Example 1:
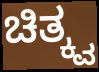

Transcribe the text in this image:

ಚಿತ್ಕ್ವ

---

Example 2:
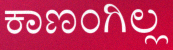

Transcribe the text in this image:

ಕಾಣಂಗಿಲ್ಲ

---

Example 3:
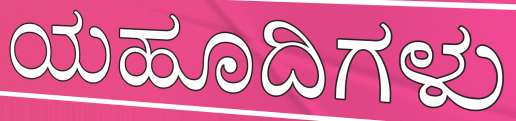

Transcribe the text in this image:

ಯಹೂದಿಗಳು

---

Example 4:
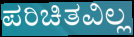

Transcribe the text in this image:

ಪರಿಚಿತವಿಲ್ಲ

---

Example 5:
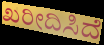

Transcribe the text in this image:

ಖರೀದಿಸಿದೆ